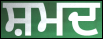
ਸ਼ਮਦ